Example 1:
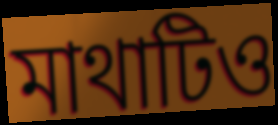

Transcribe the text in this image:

মাথাটিও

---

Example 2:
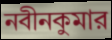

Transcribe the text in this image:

নবীনকুমার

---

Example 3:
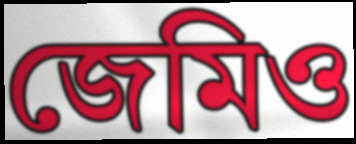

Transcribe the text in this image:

জেমিও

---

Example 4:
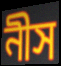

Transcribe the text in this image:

নীস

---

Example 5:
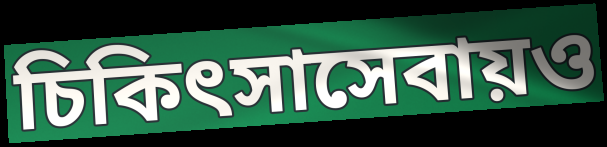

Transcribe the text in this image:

চিকিৎসাসেবায়ও